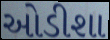
ઓડીશા